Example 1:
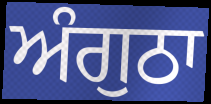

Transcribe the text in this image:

ਅੰਗੁਠਾ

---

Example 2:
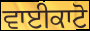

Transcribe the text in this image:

ਵਾਈਕਾਟੋ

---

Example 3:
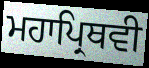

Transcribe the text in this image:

ਮਹਾਪ੍ਰਿਥਵੀ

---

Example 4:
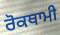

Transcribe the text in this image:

ਰੋਕਥਾਮੀ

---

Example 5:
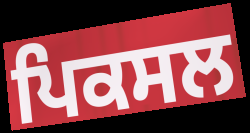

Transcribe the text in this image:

ਪਿਕਸਲ